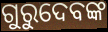
ଗୁରୁଦେବଙ୍କ